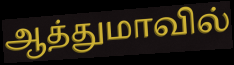
ஆத்துமாவில்